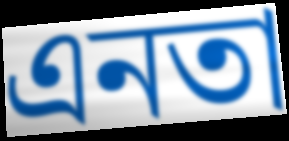
এনতা